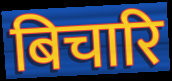
बिचारि